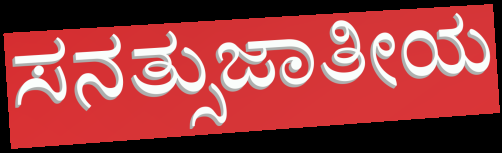
ಸನತ್ಸುಜಾತೀಯ